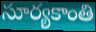
సూర్యకాంతి